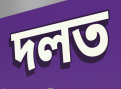
দলত